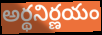
అర్థనిర్ణయం